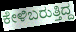
ಕೇಳಿಬರುತ್ತಿದ್ದ